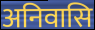
अनिवासि